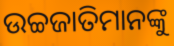
ଉଚ୍ଚଜାତିମାନଙ୍କୁ